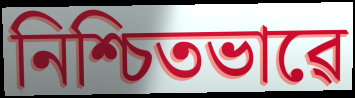
নিশ্চিতভাৱে